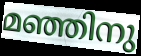
മഞ്ഞിനു